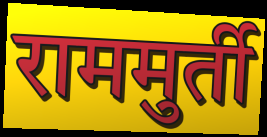
राममुर्ती